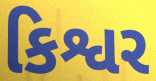
કિશ્વર